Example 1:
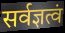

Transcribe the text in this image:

सर्वज्ञत्वं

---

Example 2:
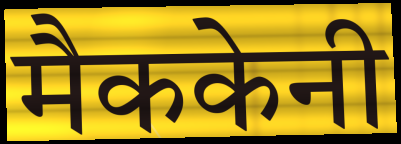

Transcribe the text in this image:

मैककेनी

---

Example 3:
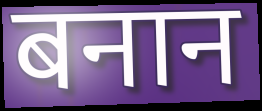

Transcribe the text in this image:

बनान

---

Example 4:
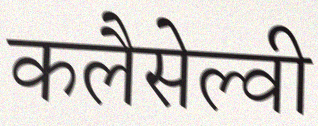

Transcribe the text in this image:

कलैसेल्वी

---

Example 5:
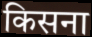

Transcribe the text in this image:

किसना